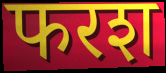
फरश